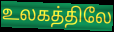
உலகத்திலே